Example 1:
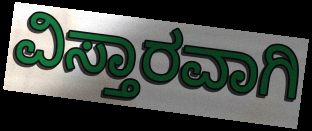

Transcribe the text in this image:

ವಿಸ್ತಾರವಾಗಿ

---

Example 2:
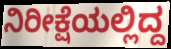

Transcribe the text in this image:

ನಿರೀಕ್ಷೆಯಲ್ಲಿದ್ದ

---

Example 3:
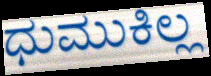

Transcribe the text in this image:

ಧುಮುಕಿಲ್ಲ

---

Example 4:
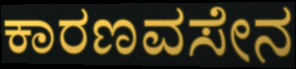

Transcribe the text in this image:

ಕಾರಣವಸೇನ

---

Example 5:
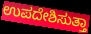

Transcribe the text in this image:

ಉಪದೇಶಿಸುತ್ತಾ